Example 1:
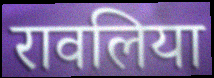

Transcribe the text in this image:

रावलिया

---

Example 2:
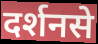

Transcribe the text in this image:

दर्शनसे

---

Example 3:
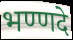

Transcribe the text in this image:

भण्णदे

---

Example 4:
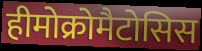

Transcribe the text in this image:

हीमोक्रोमैटोसिस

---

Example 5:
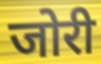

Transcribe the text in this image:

जोरी